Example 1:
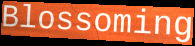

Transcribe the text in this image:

Blossoming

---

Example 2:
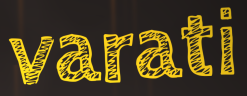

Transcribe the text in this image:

varati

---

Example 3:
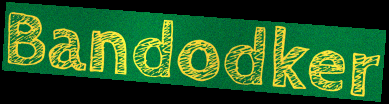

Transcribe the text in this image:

Bandodker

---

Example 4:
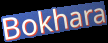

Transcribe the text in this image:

Bokhara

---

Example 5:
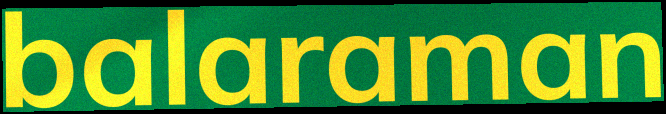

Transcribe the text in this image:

balaraman